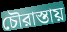
চৌরাস্তায়